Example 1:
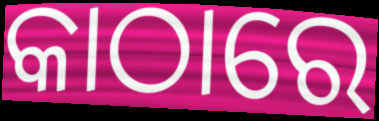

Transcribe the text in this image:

କାଠାରେ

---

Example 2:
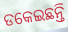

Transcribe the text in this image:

ଡକେଇଛନ୍ତି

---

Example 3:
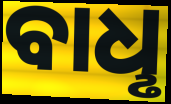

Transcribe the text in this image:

ବାଧୢ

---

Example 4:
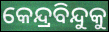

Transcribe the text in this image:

କେନ୍ଦ୍ରବିନ୍ଦୁକୁ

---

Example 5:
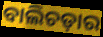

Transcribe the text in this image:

ବାଲିଚଡ଼ାର